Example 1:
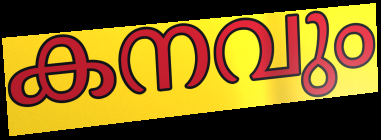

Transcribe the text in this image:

കനവും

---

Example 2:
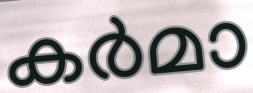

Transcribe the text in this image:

കർമാ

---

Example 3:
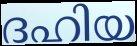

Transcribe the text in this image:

ദഹിയ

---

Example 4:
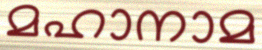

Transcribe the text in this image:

മഹാനാമ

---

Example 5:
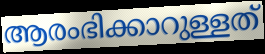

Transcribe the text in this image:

ആരംഭിക്കാറുള്ളത്